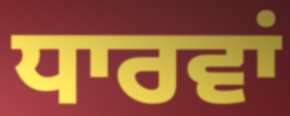
ਧਾਰਵਾਂ